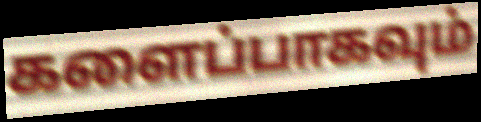
களைப்பாகவும்